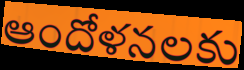
ఆందోళనలకు